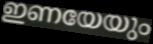
ഇണയേയും